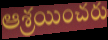
ఆశ్రయించరు